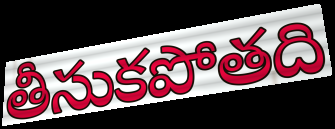
తీసుకపోతది